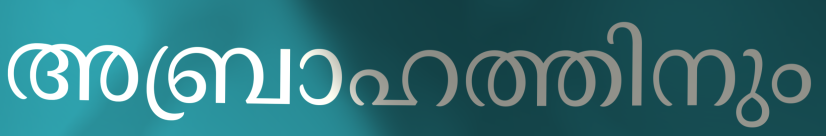
അബ്രാഹത്തിനും